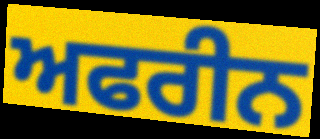
ਅਫਰੀਨ